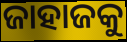
ଜାହାଜକୁ